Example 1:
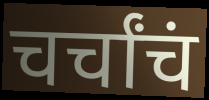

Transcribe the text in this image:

चर्चांचं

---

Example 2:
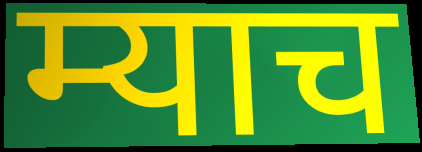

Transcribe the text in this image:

म्याच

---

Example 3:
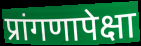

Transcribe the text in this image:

प्रांगणापेक्षा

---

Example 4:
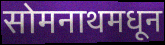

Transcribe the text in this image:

सोमनाथमधून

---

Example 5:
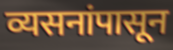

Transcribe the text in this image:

व्यसनांपासून